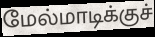
மேல்மாடிக்குச்